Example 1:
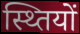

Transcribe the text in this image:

स्थ्तियों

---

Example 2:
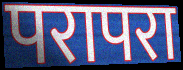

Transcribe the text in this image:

परापरा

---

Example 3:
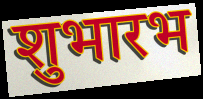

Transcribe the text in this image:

शुभारभ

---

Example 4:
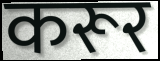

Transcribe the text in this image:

करूर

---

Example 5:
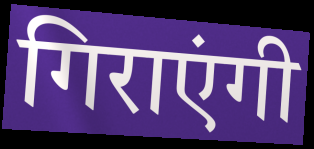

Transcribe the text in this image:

गिराएंगी